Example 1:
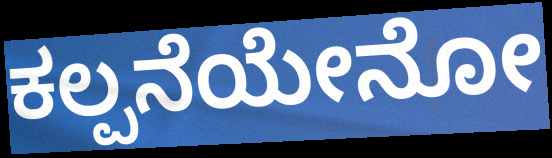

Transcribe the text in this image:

ಕಲ್ಪನೆಯೇನೋ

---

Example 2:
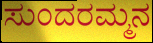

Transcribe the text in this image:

ಸುಂದರಮ್ಮನ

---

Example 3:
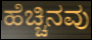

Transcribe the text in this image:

ಹೆಚ್ಚಿನವು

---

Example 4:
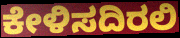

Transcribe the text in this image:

ಕೇಳಿಸದಿರಲಿ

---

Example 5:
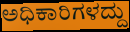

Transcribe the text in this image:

ಅಧಿಕಾರಿಗಳದ್ದು